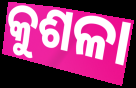
କୁଶଳା